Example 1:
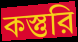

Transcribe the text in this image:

কস্তুরি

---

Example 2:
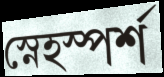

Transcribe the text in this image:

স্নেহস্পর্শ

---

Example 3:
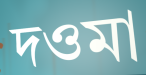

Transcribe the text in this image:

দওমা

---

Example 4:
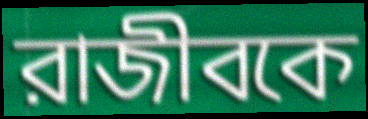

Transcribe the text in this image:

রাজীবকে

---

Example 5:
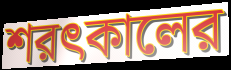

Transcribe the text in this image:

শরৎকালের